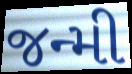
જન્મી